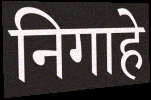
निगाहे